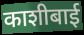
काशीबाई